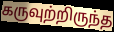
கருவுற்றிருந்த